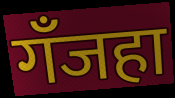
गँजहा